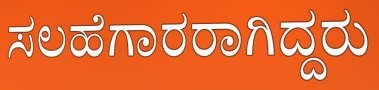
ಸಲಹೆಗಾರರಾಗಿದ್ದರು